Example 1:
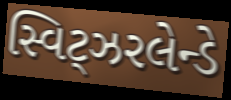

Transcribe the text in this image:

સ્વિટ્ઝરલેન્ડે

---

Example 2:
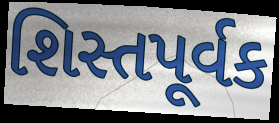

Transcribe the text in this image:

શિસ્તપૂર્વક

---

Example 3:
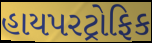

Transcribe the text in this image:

હાયપરટ્રોફિક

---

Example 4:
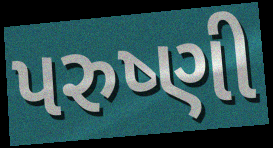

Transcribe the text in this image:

પરુષ્ણી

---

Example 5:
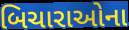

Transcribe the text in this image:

બિચારાઓના